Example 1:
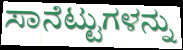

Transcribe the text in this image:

ಸಾನೆಟ್ಟುಗಳನ್ನು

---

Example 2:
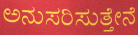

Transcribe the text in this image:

ಅನುಸರಿಸುತ್ತೇನೆ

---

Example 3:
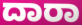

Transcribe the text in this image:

ದಾರಾ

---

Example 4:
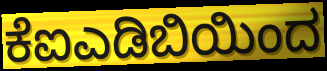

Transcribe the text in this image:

ಕೆಐಎಡಿಬಿಯಿಂದ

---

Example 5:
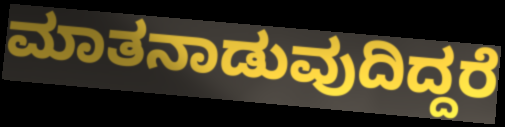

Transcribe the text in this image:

ಮಾತನಾಡುವುದಿದ್ದರೆ